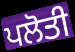
ਪਲੋਤੀ